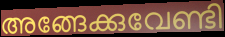
അങ്ങേക്കുവേണ്ടി